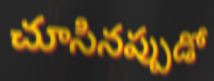
చూసినప్పుడో